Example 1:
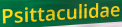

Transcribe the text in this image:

Psittaculidae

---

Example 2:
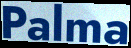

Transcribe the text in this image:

Palma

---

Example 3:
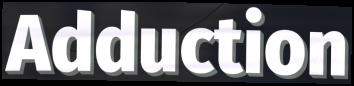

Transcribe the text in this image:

Adduction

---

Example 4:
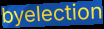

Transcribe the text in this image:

byelection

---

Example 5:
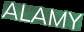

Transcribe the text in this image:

ALAMY